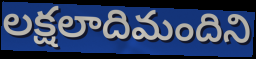
లక్షలాదిమందిని